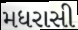
મધરાસી